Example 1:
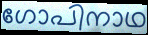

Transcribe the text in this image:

ഗോപിനാഥ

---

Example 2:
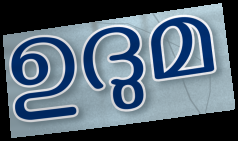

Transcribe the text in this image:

ഉദുമ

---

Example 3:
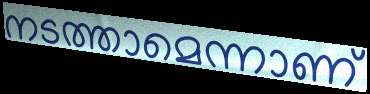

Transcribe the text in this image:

നടത്താമെന്നാണ്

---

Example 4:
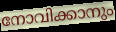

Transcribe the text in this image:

നോവിക്കാനും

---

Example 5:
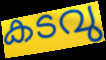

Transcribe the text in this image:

കടവു